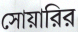
সোয়ারির